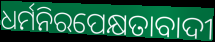
ଧର୍ମନିରପେକ୍ଷତାବାଦୀ